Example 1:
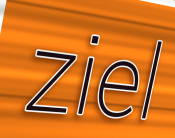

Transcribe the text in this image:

ziel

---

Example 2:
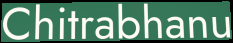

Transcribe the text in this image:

Chitrabhanu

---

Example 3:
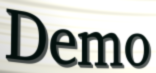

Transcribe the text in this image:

Demo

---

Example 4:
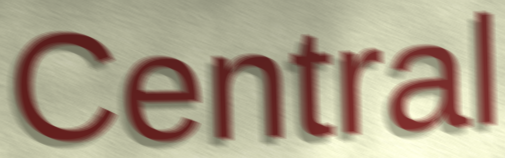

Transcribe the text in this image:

Central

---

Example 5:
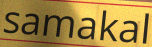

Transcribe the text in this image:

samakal